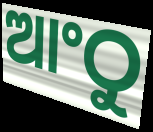
ଆଂଠୁ